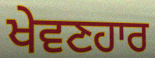
ਖੇਵਣਹਾਰ